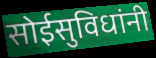
सोईसुविधांनी